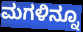
ಮಗಳಿನ್ನೂ